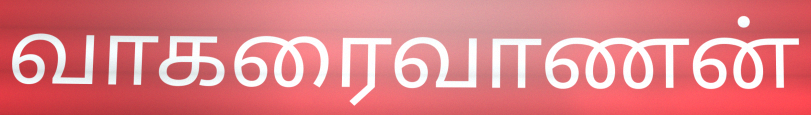
வாகரைவாணன்